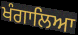
ਖੰਗਾਲਿਆ